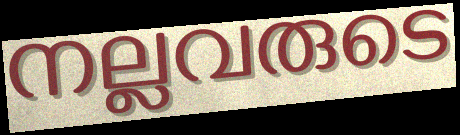
നല്ലവരുടെ